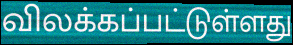
விலக்கப்பட்டுள்ளது